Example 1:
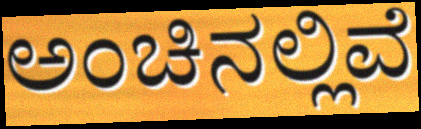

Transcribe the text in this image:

ಅಂಚಿನಲ್ಲಿವೆ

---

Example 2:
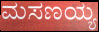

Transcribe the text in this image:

ಮಸಣಯ್ಯ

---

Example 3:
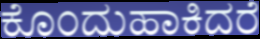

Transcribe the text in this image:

ಕೊಂದುಹಾಕಿದರೆ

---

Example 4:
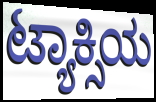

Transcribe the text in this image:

ಟ್ಯಾಕ್ಸಿಯ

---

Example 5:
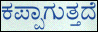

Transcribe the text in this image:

ಕಪ್ಪಾಗುತ್ತದೆ